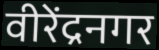
वीरेंद्रनगर